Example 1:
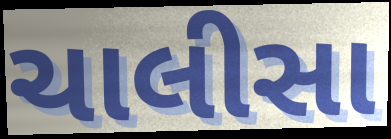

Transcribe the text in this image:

ચાલીસા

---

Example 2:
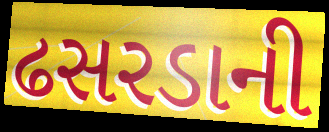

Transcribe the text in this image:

ઢસરડાની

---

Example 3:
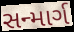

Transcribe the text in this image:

સન્માર્ગ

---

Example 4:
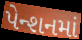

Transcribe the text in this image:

પેન્શનમાં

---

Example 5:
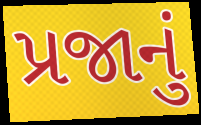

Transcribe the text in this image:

પ્રજાનું